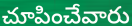
చూపించేవారు